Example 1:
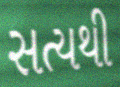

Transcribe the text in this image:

સત્યથી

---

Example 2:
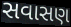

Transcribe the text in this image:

સવાસણ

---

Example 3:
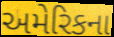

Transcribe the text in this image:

અમેરિકના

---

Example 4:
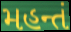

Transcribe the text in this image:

મહન્તં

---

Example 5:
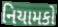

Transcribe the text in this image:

નિયામકો